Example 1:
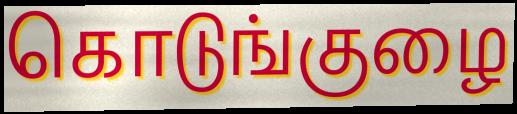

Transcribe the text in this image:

கொடுங்குழை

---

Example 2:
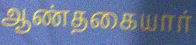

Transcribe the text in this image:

ஆண்தகையார்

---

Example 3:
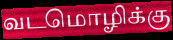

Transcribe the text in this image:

வடமொழிக்கு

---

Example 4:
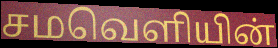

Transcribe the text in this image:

சமவெளியின்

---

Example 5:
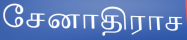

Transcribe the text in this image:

சேனாதிராச